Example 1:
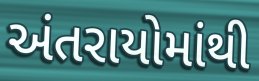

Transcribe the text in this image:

અંતરાયોમાંથી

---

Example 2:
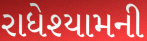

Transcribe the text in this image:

રાધેશ્યામની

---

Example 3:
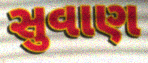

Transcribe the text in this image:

સુવાણ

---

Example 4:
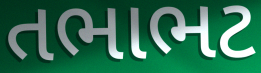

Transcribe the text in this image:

તભાભટ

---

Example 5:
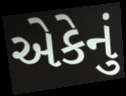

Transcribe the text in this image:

એકેનું